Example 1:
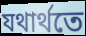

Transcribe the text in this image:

যথাৰ্থতে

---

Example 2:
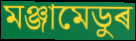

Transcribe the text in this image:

মঞ্জামেডুৰ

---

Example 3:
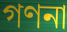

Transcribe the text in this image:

গণনা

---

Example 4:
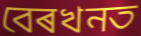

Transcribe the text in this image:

বেৰখনত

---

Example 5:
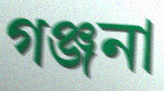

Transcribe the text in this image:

গঞ্জনা